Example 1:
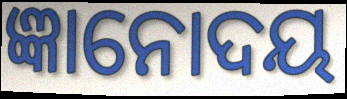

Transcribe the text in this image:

ଜ୍ଞାନୋଦୟ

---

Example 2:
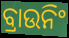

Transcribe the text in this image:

ବ୍ରାଉନିଂ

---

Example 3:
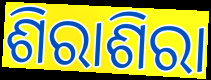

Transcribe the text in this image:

ଶିରାଶିରା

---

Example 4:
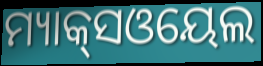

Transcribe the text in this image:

ମ୍ୟାକ୍‌ସଓୟେଲ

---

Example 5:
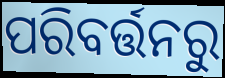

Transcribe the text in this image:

ପରିବର୍ତ୍ତନରୁ